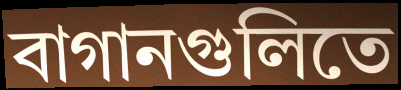
বাগানগুলিতে